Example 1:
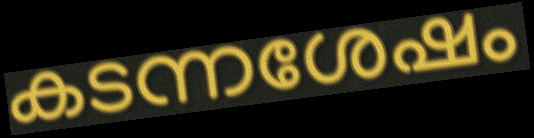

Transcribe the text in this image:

കടന്നശേഷം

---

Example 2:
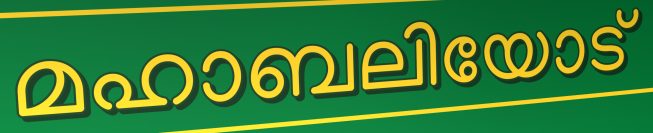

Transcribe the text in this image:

മഹാബലിയോട്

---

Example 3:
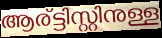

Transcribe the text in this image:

ആര്ട്ടിസ്റ്റിനുള്ള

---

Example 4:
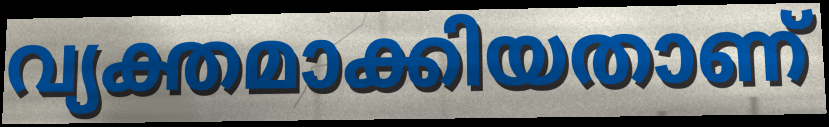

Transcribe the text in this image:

വ്യക്തമാക്കിയതാണ്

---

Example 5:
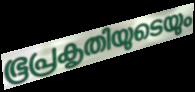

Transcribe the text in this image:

ഭൂപ്രകൃതിയുടെയും